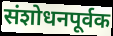
संशोधनपूर्वक